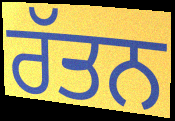
ਰੱਤਨ